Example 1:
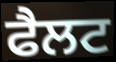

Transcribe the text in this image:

ਫੈਲਟ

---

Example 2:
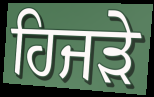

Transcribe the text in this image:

ਹਿਜੜੇ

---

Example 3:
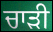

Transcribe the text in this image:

ਚਾਡ਼ੀ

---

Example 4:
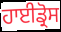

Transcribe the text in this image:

ਹਾਈਡ੍ਰੋਸ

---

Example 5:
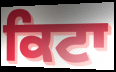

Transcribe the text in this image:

ਕਿਟਾ